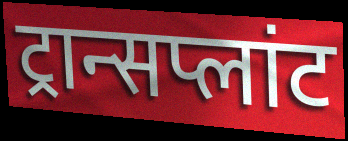
ट्रान्सप्लांट